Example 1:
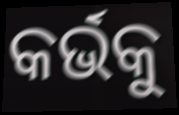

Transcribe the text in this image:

କର୍ଭକୁ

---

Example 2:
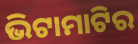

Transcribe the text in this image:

ଭିଟାମାଟିର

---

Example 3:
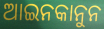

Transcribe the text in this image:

ଆଇନକାନୁନ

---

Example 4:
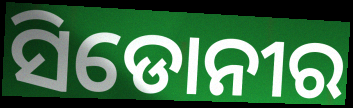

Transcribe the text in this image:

ସିଡୋନୀର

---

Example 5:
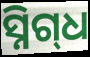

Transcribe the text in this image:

ସ୍ନିଗ୍‍ଧ